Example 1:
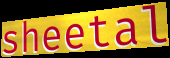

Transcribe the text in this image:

sheetal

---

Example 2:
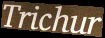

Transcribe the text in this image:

Trichur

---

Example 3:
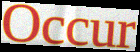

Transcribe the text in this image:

Occur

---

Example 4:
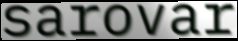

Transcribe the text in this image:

sarovar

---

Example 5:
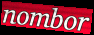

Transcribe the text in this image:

nombor